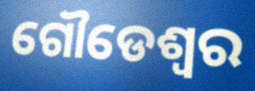
ଗୌଡେଶ୍ୱର